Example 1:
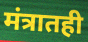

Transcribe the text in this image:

मंत्रातही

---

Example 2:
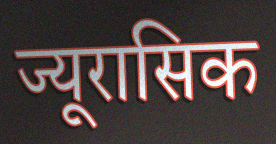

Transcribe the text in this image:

ज्यूरासिक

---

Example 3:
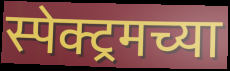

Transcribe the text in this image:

स्पेक्ट्रमच्या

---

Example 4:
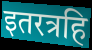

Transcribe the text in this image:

इतरत्रहि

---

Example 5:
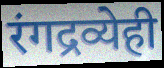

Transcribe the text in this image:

रंगद्रव्येही